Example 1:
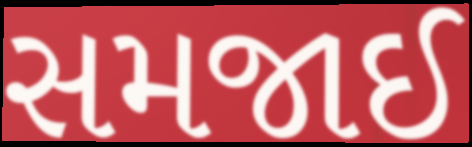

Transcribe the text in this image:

સમજાઈ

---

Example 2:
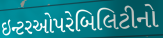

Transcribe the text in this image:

ઇન્ટરઓપરેબિલિટીનો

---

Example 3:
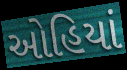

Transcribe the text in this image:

ઓહિયાં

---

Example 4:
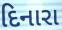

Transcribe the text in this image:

દિનારા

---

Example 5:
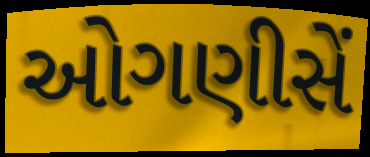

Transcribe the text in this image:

ઓગણીસેં